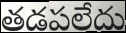
తడపలేదు